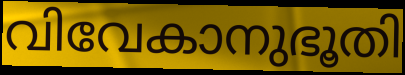
വിവേകാനുഭൂതി